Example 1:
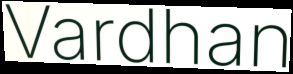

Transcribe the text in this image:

Vardhan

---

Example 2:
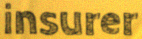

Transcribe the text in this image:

insurer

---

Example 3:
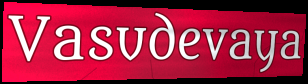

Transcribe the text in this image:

Vasudevaya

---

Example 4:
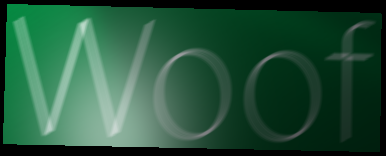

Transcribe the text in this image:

Woof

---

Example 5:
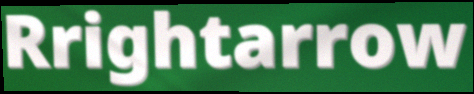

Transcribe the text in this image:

Rrightarrow